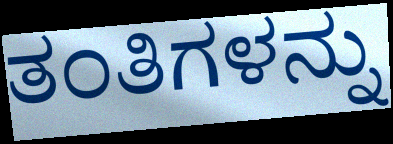
ತಂತಿಗಳನ್ನು